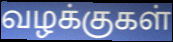
வழக்குகள்